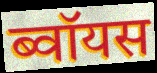
ब्वॉयस